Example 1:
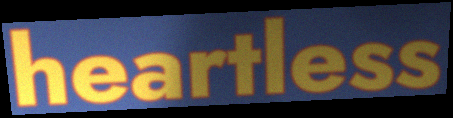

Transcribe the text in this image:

heartless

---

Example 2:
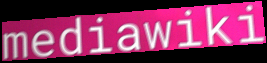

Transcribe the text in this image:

mediawiki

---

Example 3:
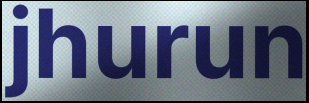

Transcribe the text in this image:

jhurun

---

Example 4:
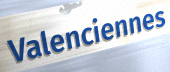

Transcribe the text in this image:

Valenciennes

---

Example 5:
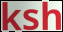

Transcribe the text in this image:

ksh